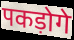
पकड़ोगे